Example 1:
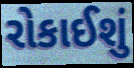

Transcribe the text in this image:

રોકાઈશું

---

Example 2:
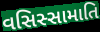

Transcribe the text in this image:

વસિસ્સામાતિ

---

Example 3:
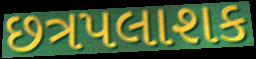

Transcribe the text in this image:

છત્રપલાશક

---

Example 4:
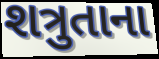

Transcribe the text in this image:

શત્રુતાના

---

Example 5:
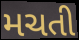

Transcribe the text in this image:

મચતી